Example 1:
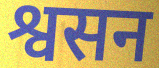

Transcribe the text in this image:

श्वसन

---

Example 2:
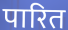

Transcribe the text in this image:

पारित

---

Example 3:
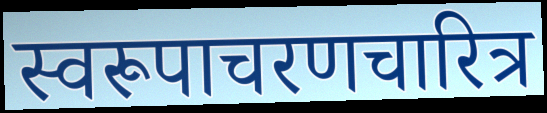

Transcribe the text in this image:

स्वरूपाचरणचारित्र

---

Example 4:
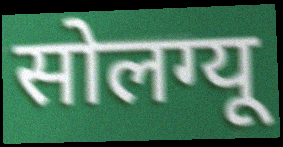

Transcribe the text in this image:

सोलग्यू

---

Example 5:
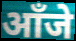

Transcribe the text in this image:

आँजे